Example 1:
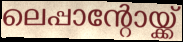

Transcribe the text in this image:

ലെപ്പാന്റോയ്ക്ക്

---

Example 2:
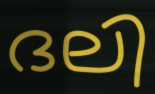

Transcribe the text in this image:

ദലി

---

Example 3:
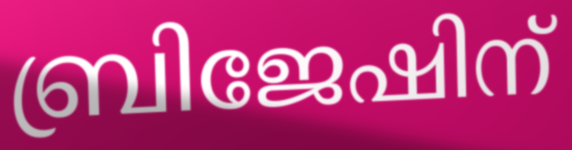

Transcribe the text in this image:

ബ്രിജേഷിന്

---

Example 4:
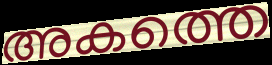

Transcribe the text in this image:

അകത്തെ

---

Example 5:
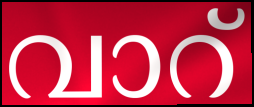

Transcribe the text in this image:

വാറ്